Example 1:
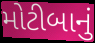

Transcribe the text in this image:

મોટીબાનું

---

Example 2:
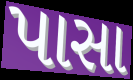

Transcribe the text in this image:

પાસા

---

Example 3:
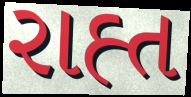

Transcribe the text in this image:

રાહ્ત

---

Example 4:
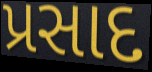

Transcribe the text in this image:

પ્રસાદ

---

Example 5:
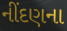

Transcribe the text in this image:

નીંદણના